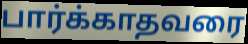
பார்க்காதவரை